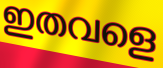
ഇതവളെ